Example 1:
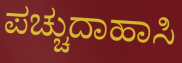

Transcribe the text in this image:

ಪಚ್ಚುದಾಹಾಸಿ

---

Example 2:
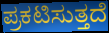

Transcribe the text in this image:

ಪ್ರಕಟಿಸುತ್ತದೆ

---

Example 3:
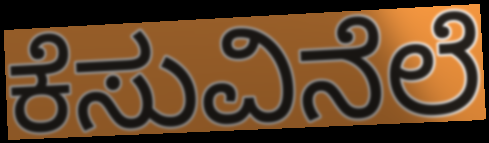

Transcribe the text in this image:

ಕೆಸುವಿನೆಲೆ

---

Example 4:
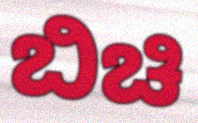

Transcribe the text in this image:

ಬಿಚಿ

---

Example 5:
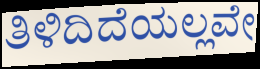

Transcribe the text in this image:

ತಿಳಿದಿದೆಯಲ್ಲವೇ